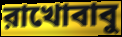
রাখোবাবু